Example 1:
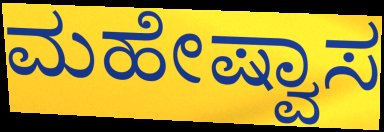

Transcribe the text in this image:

ಮಹೇಷ್ವಾಸ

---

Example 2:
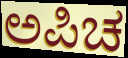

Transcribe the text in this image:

ಅಪಿಚ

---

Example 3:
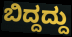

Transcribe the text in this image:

ಬಿದ್ದದ್ದು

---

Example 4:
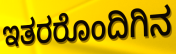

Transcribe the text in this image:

ಇತರರೊಂದಿಗಿನ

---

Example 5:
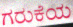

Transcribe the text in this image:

ಗರುಕೆಯ